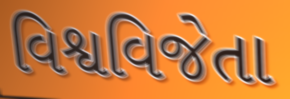
વિશ્વવિજેતા